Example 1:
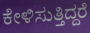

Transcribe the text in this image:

ಕೇಳಿಸುತ್ತಿದ್ದರೆ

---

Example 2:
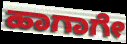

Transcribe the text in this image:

ಹಾಗಾಗೇ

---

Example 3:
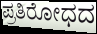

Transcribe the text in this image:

ಪ್ರತಿರೋಧದ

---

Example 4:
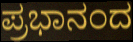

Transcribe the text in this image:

ಪ್ರಭಾನಂದ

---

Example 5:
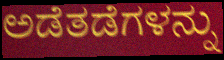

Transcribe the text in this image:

ಅಡೆತಡೆಗಳನ್ನು